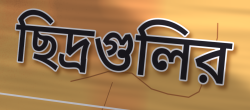
ছিদ্রগুলির